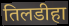
तिलडीहा